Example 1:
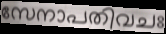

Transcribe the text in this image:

സേനാപതിവചഃ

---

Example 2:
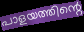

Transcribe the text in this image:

പാളയത്തിന്റെ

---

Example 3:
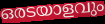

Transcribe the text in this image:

ഒരടയാളവും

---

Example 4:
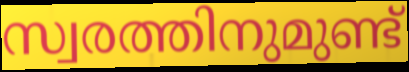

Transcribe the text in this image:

സ്വരത്തിനുമുണ്ട്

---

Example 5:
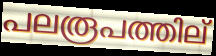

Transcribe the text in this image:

പലരൂപത്തില്